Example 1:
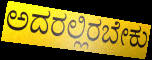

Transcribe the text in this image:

ಅದರಲ್ಲಿರಬೇಕು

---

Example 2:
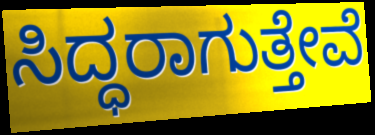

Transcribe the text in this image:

ಸಿದ್ಧರಾಗುತ್ತೇವೆ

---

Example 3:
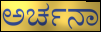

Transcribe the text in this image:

ಅರ್ಚನಾ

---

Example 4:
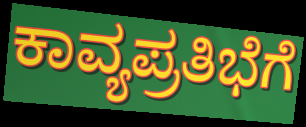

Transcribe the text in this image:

ಕಾವ್ಯಪ್ರತಿಭೆಗೆ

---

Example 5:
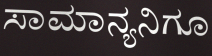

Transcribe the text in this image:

ಸಾಮಾನ್ಯನಿಗೂ